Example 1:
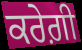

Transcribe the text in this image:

ਕਰੇਗ਼ੀ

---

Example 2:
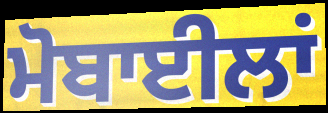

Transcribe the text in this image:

ਮੋਬਾਈਲਾਂ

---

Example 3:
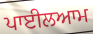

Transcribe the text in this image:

ਪਾਈਲਆਮ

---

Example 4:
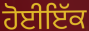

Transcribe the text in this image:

ਹੋਈਇੱਕ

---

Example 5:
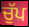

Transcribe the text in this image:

ਚੁੱਪ